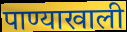
पाण्‍याखाली